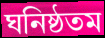
ঘনিষ্ঠতম